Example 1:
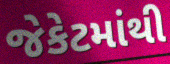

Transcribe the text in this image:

જેકેટમાંથી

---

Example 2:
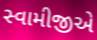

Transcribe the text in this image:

સ્વામીજીએ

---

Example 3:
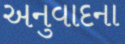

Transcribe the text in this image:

અનુવાદના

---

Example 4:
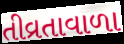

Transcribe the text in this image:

તીવ્રતાવાળા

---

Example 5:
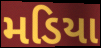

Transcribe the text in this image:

મડિયા